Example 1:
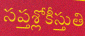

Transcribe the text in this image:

సప్తశ్లోకీస్తుతి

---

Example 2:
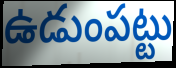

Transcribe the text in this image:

ఉడుంపట్టు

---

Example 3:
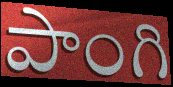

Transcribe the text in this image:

పాంగి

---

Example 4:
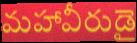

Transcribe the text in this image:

మహావీరుడై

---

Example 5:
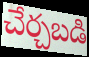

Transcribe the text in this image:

చేర్చబడి